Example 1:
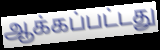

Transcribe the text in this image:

ஆக்கப்பட்டது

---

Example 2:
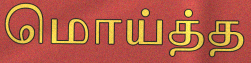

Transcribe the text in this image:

மொய்த்த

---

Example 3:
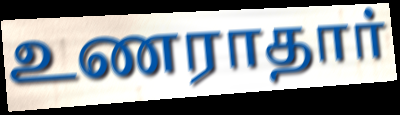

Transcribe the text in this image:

உணராதார்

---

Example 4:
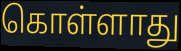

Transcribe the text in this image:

கொள்ளாது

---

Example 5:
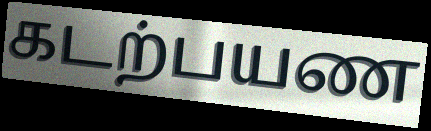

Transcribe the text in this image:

கடற்பயண